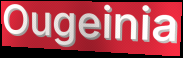
Ougeinia